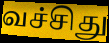
வச்சிது